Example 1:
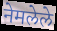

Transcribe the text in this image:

नेमलेले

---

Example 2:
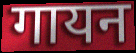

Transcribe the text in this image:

गायन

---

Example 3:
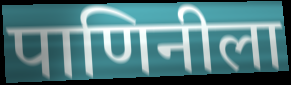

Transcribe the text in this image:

पाणिनीला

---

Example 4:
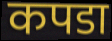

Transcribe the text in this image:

कपडा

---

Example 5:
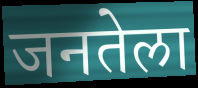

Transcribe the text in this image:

जनतेला